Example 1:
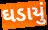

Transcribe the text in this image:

ઘડાયું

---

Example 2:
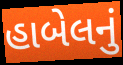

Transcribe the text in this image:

હાબેલનું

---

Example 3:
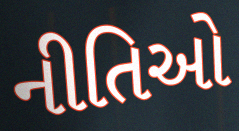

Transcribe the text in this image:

નીતિઓ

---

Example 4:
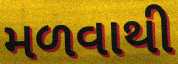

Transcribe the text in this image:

મળવાથી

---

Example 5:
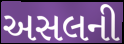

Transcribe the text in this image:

અસલની